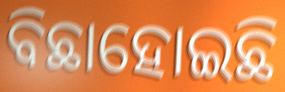
ବିଛାହୋଇଛି